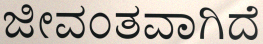
ಜೀವಂತವಾಗಿದೆ